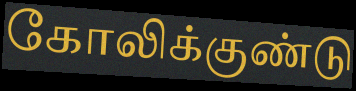
கோலிக்குண்டு